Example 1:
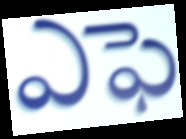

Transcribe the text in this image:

ఎఫె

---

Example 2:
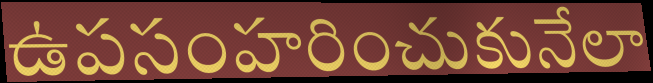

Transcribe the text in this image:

ఉపసంహరించుకునేలా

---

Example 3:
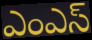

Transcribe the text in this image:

ఎంఎస్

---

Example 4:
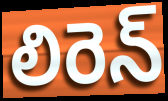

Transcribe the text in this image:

లిరెన్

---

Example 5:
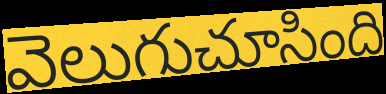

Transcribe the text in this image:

వెలుగుచూసింది